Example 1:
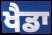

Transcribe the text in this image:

ਖੈਡਾ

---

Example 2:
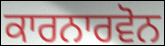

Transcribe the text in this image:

ਕਾਰਨਾਰਵੋਨ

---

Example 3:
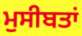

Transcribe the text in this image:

ਮੁਸੀਬਤਾਂ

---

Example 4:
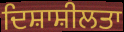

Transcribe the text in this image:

ਦਿਸ਼ਾਸ਼ੀਲਤਾ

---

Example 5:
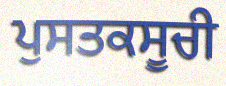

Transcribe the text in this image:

ਪੁਸਤਕਸੂਚੀ